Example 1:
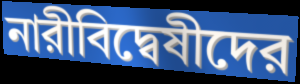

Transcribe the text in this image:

নারীবিদ্বেষীদের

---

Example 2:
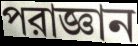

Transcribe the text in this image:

পরাজ্ঞান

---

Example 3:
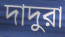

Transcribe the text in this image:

দাদুরা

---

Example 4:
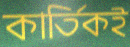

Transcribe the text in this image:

কার্তিকই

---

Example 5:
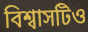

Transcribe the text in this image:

বিশ্বাসটিও